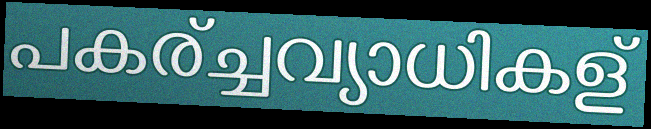
പകര്ച്ചവ്യാധികള്